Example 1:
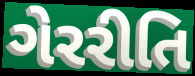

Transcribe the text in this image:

ગેરરીતિ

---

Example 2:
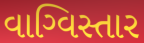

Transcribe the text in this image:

વાગ્વિસ્તાર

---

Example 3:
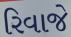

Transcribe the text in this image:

રિવાજે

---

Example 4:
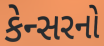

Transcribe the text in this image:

કેન્સરનો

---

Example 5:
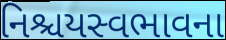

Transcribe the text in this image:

નિશ્ચયસ્વભાવના